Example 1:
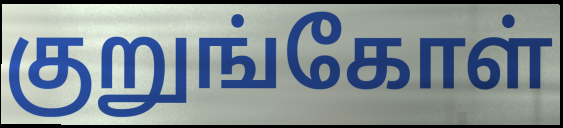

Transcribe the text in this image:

குறுங்கோள்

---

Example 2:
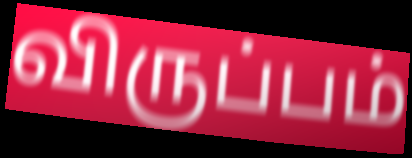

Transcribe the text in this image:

விருப்பம்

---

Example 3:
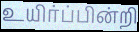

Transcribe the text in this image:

உயிர்ப்பின்றி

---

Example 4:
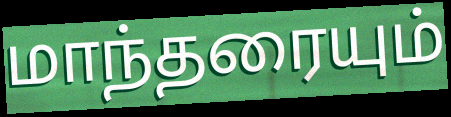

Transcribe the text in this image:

மாந்தரையும்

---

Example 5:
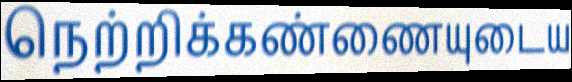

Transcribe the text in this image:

நெற்றிக்கண்ணையுடைய